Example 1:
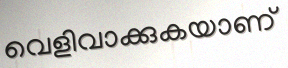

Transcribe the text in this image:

വെളിവാക്കുകയാണ്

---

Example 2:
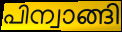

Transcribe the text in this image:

പിന്വാങ്ങി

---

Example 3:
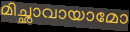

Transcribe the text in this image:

മിച്ഛാവായാമോ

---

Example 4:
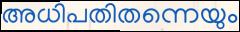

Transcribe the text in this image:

അധിപതിതന്നെയും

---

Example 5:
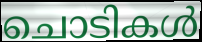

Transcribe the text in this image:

ചൊടികൾ